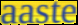
aaste